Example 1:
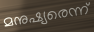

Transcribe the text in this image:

മനുഷ്യരെന്ന്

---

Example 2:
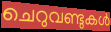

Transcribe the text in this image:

ചെറുവണ്ടുകൾ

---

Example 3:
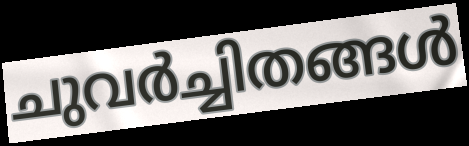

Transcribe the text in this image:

ചുവർച്ചിതങ്ങൾ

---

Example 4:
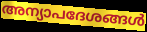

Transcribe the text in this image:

അന്യാപദേശങ്ങൾ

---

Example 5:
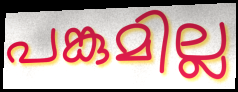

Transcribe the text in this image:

പങ്കുമില്ല